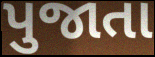
પુજાતા